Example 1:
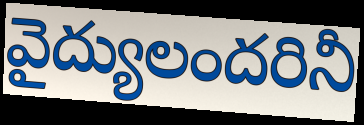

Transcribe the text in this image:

వైద్యులందరినీ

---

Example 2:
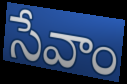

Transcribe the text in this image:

సేవాం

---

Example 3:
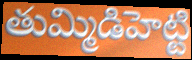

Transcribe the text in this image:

తుమ్మిడిహెట్టి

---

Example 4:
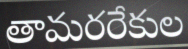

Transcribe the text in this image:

తామరరేకుల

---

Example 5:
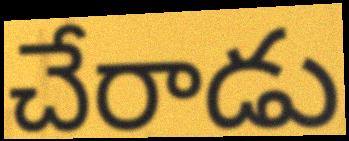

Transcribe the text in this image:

చేరాడు